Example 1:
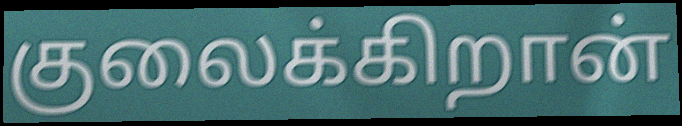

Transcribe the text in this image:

குலைக்கிறான்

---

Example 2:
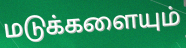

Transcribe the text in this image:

மடுக்களையும்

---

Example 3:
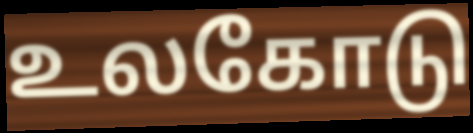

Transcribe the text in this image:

உலகோடு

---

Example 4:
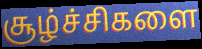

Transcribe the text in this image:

சூழ்ச்சிகளை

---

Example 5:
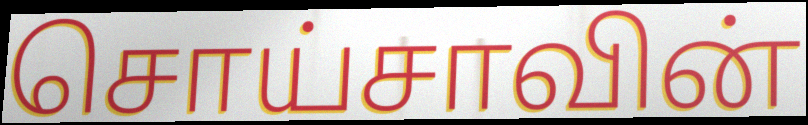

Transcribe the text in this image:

சொய்சாவின்